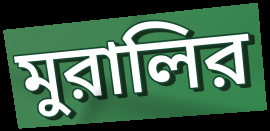
মুরালির